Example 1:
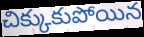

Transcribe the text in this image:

చిక్కుకుపోయిన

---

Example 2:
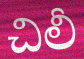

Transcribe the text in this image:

చిలీ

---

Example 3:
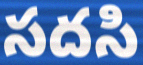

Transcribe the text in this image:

సదసి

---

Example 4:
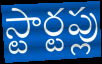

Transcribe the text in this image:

స్టార్టప్లు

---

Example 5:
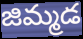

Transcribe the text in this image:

జిమ్మడ